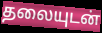
தலையுடன்